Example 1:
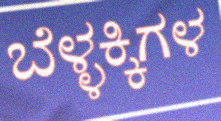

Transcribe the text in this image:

ಬೆಳ್ಳಕ್ಕಿಗಳ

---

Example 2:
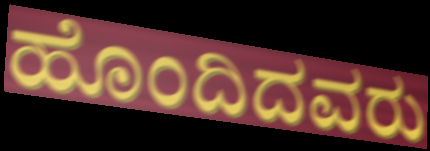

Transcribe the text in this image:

ಹೊಂದಿದವರು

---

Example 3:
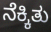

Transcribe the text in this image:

ನೆಕ್ಕಿತು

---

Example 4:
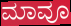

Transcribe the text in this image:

ಮಾವೂ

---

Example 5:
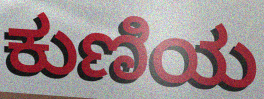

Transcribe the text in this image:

ಕುಣಿಯ